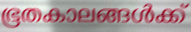
ഭൂതകാലങ്ങൾക്ക്